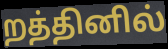
றத்தினில்